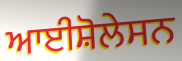
ਆਈਸ਼ੋਲੇਸਨ